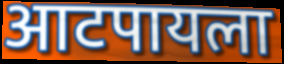
आटपायला